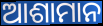
ଆଶାମାନ